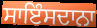
ਸਾਇੰਸਦਾਨਾ